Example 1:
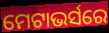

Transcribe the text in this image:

ମେଟାଭର୍ସରେ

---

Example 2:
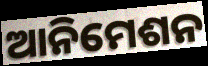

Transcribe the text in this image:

ଆନିମେଶନ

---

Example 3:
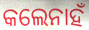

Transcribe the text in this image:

କଲେନାହଁ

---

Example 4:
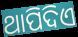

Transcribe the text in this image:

ଥାପିଦିଏ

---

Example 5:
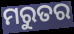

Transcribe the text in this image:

ମରୁତର